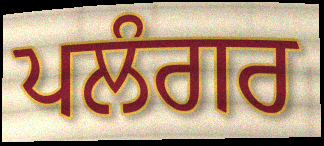
ਪਲੰਗਰ